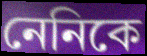
নেনিকে